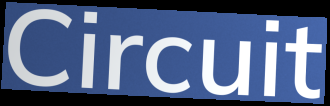
Circuit